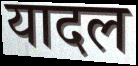
यादल